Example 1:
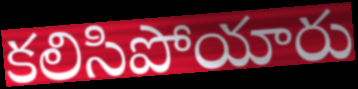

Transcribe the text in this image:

కలిసిపోయారు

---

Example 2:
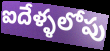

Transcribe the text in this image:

ఐదేళ్ళలోపు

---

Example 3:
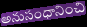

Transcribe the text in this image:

అనుసంధానించి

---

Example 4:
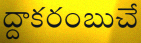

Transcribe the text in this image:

ద్దాకరంబుచే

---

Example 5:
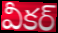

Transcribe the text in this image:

వీకర్